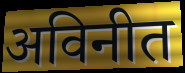
अविनीत